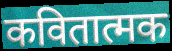
कवितात्मक